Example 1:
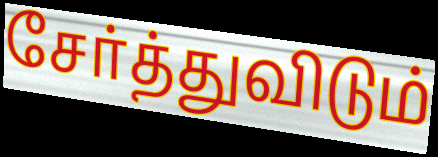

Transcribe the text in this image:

சேர்த்துவிடும்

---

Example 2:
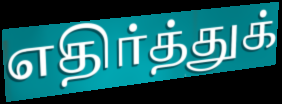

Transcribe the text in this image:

எதிர்த்துக்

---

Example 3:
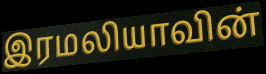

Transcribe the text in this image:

இரமலியாவின்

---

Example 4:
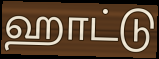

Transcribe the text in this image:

ஹாட்டு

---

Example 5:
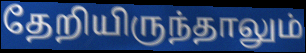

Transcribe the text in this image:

தேறியிருந்தாலும்